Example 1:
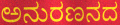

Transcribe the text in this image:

ಅನುರಣನದ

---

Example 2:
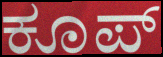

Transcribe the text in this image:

ಕೂಪ್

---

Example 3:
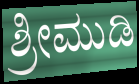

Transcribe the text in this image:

ಶ್ರೀಮುಡಿ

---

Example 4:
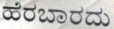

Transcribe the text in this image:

ಹೆರಬಾರದು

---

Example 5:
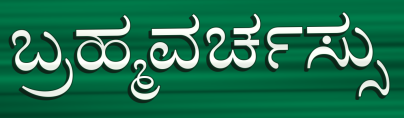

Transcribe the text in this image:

ಬ್ರಹ್ಮವರ್ಚಸ್ಸು